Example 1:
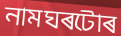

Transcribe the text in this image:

নামঘৰটোৰ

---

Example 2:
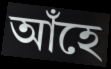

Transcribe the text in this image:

আঁহে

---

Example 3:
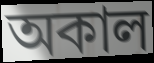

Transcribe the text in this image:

অকাল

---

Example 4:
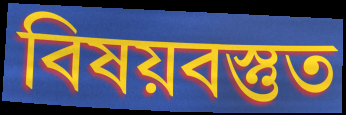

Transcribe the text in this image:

বিষয়বস্তুত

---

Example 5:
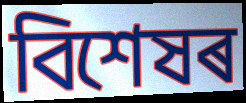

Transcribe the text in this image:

বিশেষৰ